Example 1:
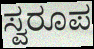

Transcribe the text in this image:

ಸ್ವರೂಪ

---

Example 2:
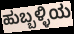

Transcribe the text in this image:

ಹುಬ್ಬಳ್ಳಿಯ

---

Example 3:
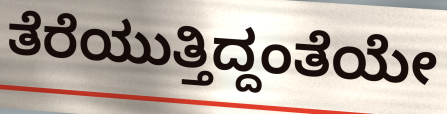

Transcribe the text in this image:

ತೆರೆಯುತ್ತಿದ್ದಂತೆಯೇ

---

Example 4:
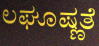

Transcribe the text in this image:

ಲಘೂಷ್ಣತೆ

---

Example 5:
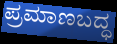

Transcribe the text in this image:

ಪ್ರಮಾಣಬದ್ಧ